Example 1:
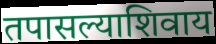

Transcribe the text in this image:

तपासल्याशिवाय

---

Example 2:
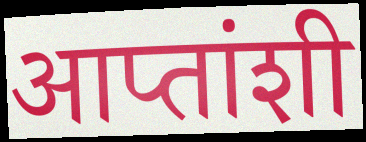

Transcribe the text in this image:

आप्तांशी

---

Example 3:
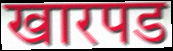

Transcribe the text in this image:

खारपड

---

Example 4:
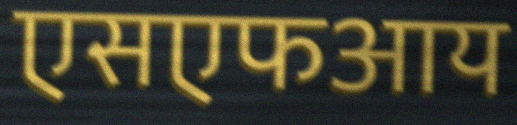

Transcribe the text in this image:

एसएफआय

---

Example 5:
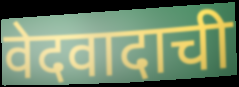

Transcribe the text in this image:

वेदवादाची